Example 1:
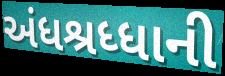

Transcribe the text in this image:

અંધશ્રધ્ધાની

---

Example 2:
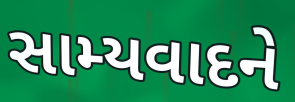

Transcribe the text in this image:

સામ્યવાદને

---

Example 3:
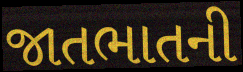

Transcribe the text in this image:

જાતભાતની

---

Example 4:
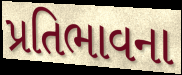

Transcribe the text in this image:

પ્રતિભાવના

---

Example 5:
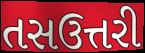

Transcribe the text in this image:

તસઉત્તરી